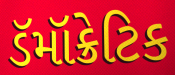
ડૅમૉક્રેટિક